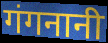
गंगनानी